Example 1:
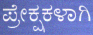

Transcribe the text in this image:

ಪ್ರೇಕ್ಷಕಳಾಗಿ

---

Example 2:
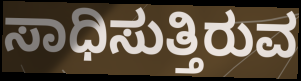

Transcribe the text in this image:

ಸಾಧಿಸುತ್ತಿರುವ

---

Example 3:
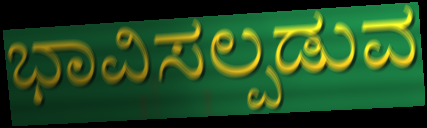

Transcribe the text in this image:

ಭಾವಿಸಲ್ಪಡುವ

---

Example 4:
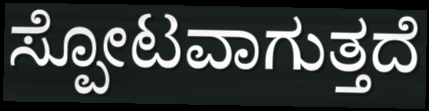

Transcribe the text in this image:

ಸ್ಪೋಟವಾಗುತ್ತದೆ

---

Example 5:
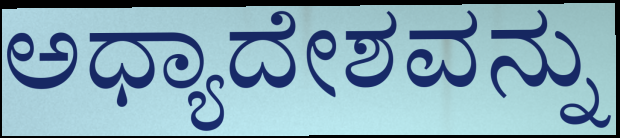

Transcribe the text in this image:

ಅಧ್ಯಾದೇಶವನ್ನು